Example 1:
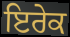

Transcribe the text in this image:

ਇਰੇਕ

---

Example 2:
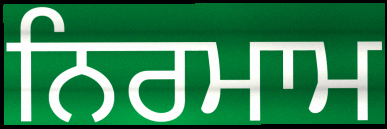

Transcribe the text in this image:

ਨਿਰਮਾਮ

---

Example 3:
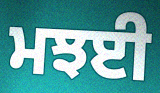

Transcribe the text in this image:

ਮਝਈ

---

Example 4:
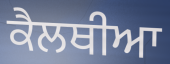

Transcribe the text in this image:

ਕੈਲਥੀਆ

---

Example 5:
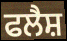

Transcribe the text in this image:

ਫਲੈਸ਼